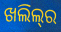
ଖଲିଲ୍‍ର